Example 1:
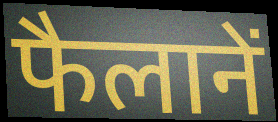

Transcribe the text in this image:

फैलानें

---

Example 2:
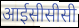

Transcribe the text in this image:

आईसीसीसी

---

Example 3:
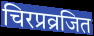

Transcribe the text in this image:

चिरप्रव्रजित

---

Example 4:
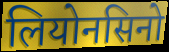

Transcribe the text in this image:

लियोनसिनो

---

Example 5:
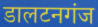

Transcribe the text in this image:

डालटनगंज